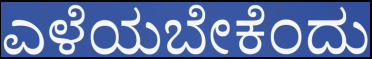
ಎಳೆಯಬೇಕೆಂದು